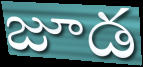
జూడ